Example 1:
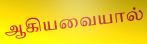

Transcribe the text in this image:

ஆகியவையால்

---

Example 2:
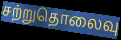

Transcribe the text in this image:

சற்றுதொலைவு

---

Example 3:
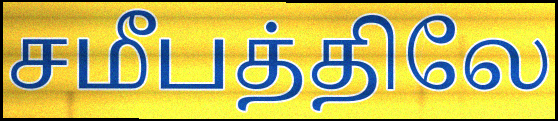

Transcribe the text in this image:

சமீபத்திலே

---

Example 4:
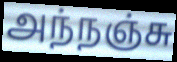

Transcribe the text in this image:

அந்நஞ்சு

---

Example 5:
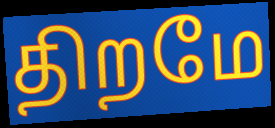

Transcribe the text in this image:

திறமே